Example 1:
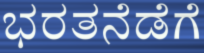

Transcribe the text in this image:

ಭರತನೆಡೆಗೆ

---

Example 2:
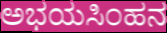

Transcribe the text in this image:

ಅಭಯಸಿಂಹನ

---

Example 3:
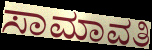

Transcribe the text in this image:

ಸಾಮಾವತಿ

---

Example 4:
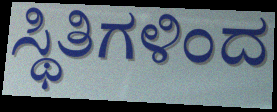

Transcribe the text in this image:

ಸ್ಥಿತಿಗಳಿಂದ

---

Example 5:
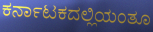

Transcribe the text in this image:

ಕರ್ನಾಟಕದಲ್ಲಿಯಂತೂ